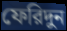
ফেরিদুন